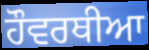
ਹੌਵਰਥੀਆ